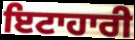
ਇਟਾਹਾਰੀ